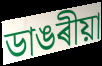
ডাঙৰীয়া